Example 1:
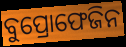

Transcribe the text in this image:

ବୁପ୍ରୋଫେଜିନ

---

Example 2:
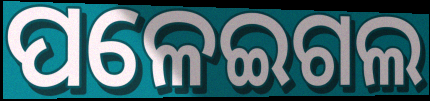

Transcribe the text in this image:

ପଳେଇଗଲ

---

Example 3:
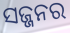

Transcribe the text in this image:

ସଜ୍ଜନର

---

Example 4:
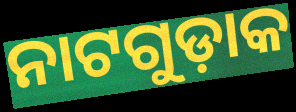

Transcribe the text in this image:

ନାଟଗୁଡ଼ାକ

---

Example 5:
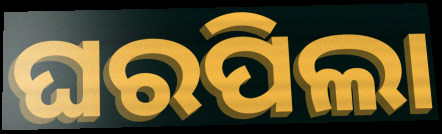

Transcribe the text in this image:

ଘରପିଲା